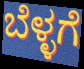
ಬೆಳ್ಳಗೆ